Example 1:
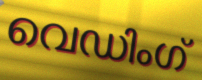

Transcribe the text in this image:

വെഡിംഗ്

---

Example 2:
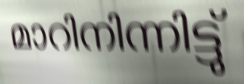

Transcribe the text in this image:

മാറിനിന്നിട്ടു്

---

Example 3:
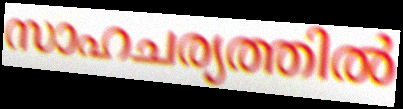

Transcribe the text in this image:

സാഹചര്യത്തിൽ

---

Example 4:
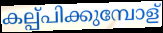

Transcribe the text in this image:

കല്പ്പിക്കുമ്പോള്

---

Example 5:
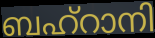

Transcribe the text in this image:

ബഹ്റാനി